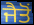
ਜੈਤੋਂ